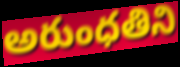
అరుంధతిని